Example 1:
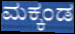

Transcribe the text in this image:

ಮಕ್ಕಂಡ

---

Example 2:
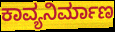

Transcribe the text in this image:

ಕಾವ್ಯನಿರ್ಮಾಣ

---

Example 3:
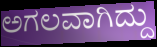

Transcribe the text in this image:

ಅಗಲವಾಗಿದ್ದು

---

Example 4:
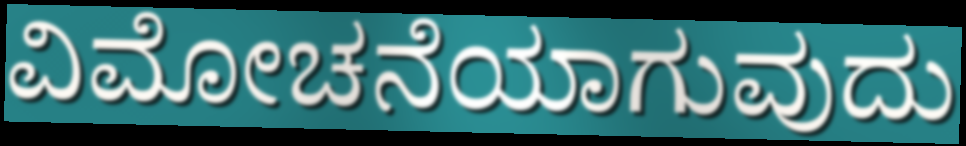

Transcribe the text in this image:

ವಿಮೋಚನೆಯಾಗುವುದು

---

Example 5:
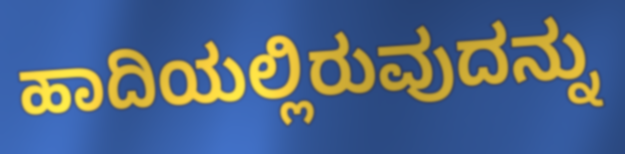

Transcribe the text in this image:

ಹಾದಿಯಲ್ಲಿರುವುದನ್ನು